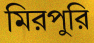
মিরপুরি